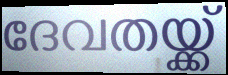
ദേവതയ്ക്ക്